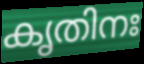
കൃതിനഃ